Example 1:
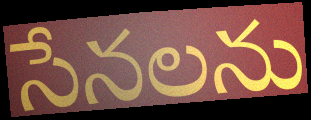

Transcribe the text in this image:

సేనలను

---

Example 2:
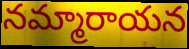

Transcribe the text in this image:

నమ్మారాయన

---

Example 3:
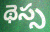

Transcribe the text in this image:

థెస్స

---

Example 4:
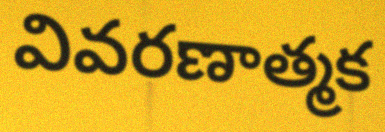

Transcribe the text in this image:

వివరణాత్మక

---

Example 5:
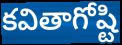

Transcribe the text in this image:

కవితాగోష్టి